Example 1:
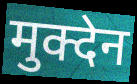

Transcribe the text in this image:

मुक्देन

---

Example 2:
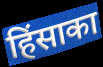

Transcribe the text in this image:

हिंसाका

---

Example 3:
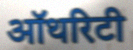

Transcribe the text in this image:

ऑथरिटी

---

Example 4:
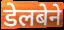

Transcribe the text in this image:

डेलबेने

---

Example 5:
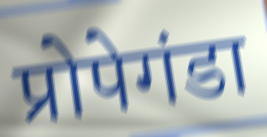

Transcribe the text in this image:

प्रोपेगंडा